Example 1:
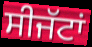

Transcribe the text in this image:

ਸੀਜੱਟਾਂ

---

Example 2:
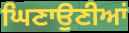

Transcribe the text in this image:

ਘਿਣਾਉਣੀਆਂ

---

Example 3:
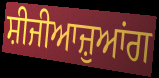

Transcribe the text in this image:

ਸ਼ੀਜੀਆਜ਼ੁਆਂਗ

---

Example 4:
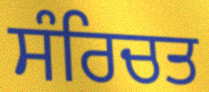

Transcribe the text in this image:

ਸੰਰਿਚਤ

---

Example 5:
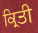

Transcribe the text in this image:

ਕ੍ਰਿਤੀ